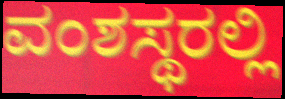
ವಂಶಸ್ಥರಲ್ಲಿ